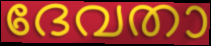
ദേവതാ